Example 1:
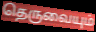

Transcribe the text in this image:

தெருவையும்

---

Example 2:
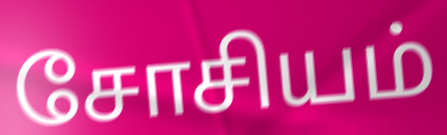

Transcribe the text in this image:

சோசியம்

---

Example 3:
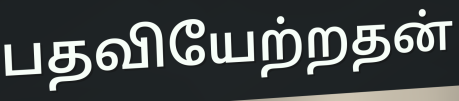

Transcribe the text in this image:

பதவியேற்றதன்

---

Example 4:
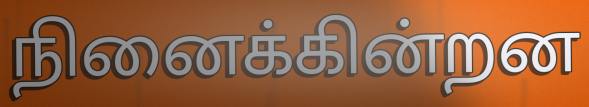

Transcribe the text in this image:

நினைக்கின்றன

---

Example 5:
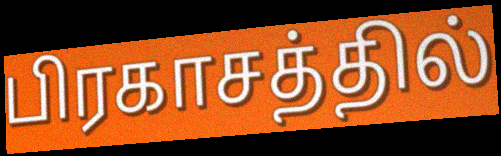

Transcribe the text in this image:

பிரகாசத்தில்